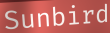
Sunbird